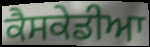
ਕੈਸਕੇਡੀਆ